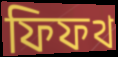
ফিফথ